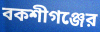
বকশীগঞ্জের